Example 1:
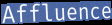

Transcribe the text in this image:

Affluence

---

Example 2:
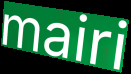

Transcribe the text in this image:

mairi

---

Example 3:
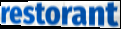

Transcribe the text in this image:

restorant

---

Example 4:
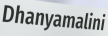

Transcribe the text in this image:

Dhanyamalini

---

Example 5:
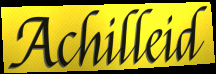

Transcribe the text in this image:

Achilleid